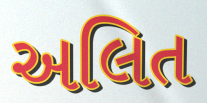
અલિત